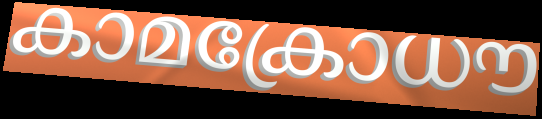
കാമക്രോധൗ